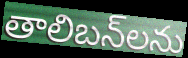
తాలిబన్‌లను